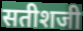
सतीशजी